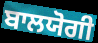
ਬਾਲਯੋਗੀ